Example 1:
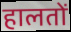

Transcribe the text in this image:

हालतों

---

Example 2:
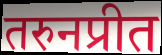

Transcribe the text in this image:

तरुनप्रीत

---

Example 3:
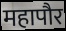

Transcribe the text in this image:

महापौर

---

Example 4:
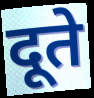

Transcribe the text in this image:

दूते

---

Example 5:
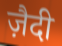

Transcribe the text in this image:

ज़ैदी